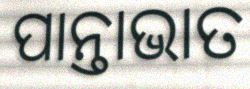
ପାନ୍ତାଭାତ